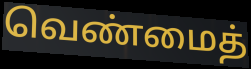
வெண்மைத்